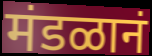
मंडळानं